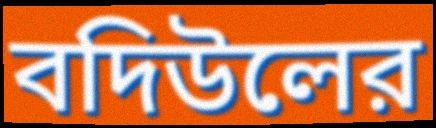
বদিউলের